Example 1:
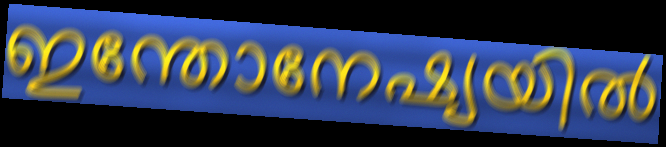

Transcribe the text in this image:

ഇന്തോനേഷ്യയിൽ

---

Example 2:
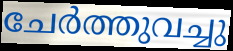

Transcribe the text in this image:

ചേർത്തുവച്ചു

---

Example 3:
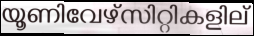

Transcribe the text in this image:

യൂണിവേഴ്സിറ്റികളില്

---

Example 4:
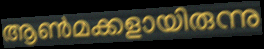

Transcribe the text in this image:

ആൺമക്കളായിരുന്നു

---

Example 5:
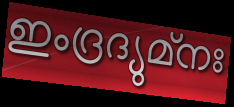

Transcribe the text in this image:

ഇംദ്രദ്യുമ്നഃ